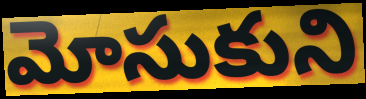
మోసుకుని